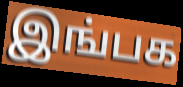
இங்பக